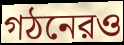
গঠনেরও